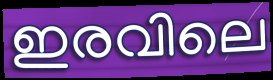
ഇരവിലെ